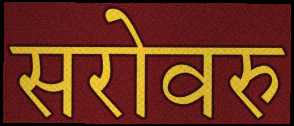
सरोवरु